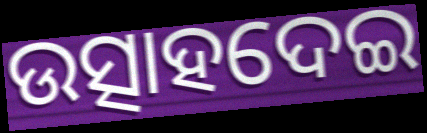
ଉତ୍ସାହଦେଇ